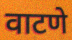
वाटणे